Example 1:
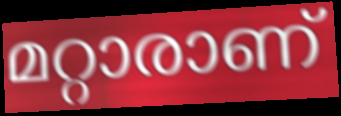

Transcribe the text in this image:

മറ്റാരാണ്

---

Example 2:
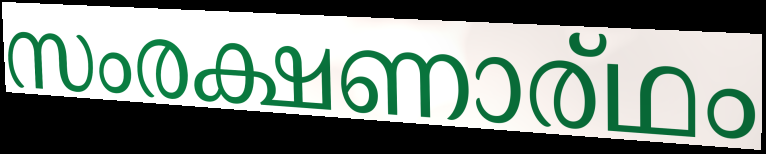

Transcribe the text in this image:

സംരക്ഷണാര്ഥം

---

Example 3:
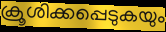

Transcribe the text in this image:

ക്രൂശിക്കപ്പെടുകയും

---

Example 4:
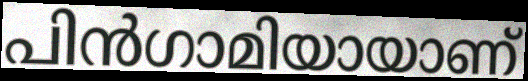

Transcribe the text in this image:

പിൻഗാമിയായാണ്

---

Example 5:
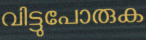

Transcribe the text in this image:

വിട്ടുപോരുക